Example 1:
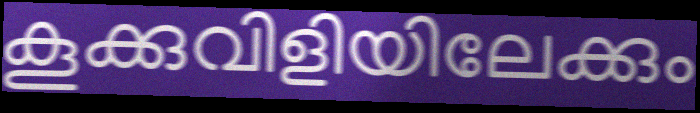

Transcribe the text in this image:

കൂക്കുവിളിയിലേക്കും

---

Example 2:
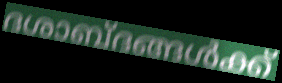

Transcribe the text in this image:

ദശാബ്ദങ്ങൾക്ക്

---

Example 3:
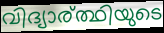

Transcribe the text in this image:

വിദ്യാര്ത്ഥിയുടെ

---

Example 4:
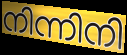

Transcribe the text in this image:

നിന്നിനി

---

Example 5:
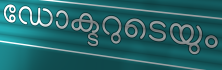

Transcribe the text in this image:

ഡോക്ടറുടെയും